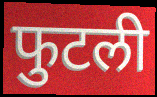
फुटली